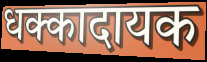
धक्‍कादायक